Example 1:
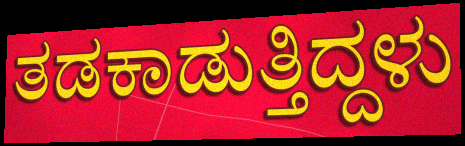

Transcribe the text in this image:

ತಡಕಾಡುತ್ತಿದ್ದಳು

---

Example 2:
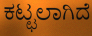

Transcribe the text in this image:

ಕಟ್ಟಲಾಗಿದೆ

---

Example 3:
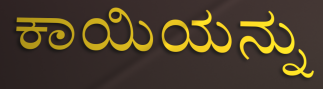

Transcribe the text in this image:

ಕಾಯಿಯನ್ನು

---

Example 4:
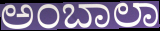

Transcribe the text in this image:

ಅಂಬಾಲಾ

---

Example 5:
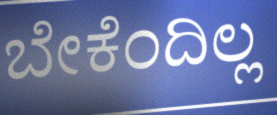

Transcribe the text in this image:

ಬೇಕೆಂದಿಲ್ಲ